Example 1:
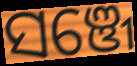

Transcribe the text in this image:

ସଞ୍ଜେ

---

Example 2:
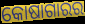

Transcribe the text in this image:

କୋଷାଗାରର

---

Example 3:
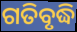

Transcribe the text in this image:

ଗତିବୃଦ୍ଧି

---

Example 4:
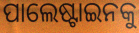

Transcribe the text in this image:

ପାଲେଷ୍ଟାଇନକୁ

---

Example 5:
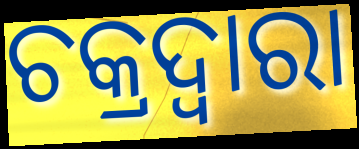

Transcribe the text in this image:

ଚକ୍ରଦ୍ୱାରା